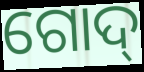
ଗୋଦ୍